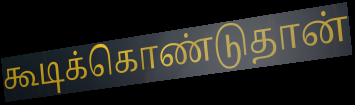
கூடிக்கொண்டுதான்